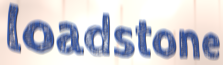
loadstone